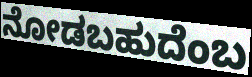
ನೋಡಬಹುದೆಂಬ